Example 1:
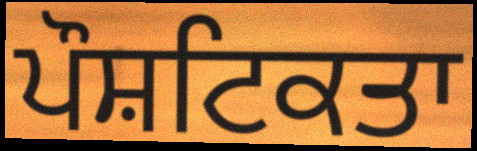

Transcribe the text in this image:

ਪੌਸ਼ਟਿਕਤਾ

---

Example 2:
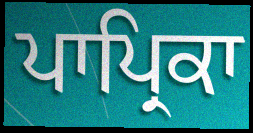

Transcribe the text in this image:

ਪਾਪ੍ਰਿਕਾ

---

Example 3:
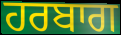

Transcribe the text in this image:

ਹਰਬਾਗ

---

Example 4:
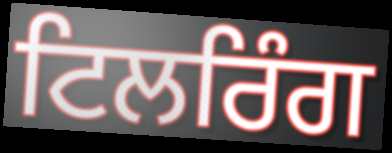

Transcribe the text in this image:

ਟਿਲਰਿੰਗ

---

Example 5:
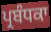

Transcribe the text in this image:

ਪ੍ਰਬੰਧਕਾ